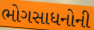
ભોગસાધનોની